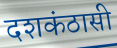
दशकंठासी